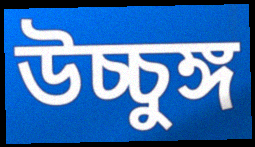
উচ্চুঙ্গ